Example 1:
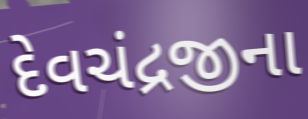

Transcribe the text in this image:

દેવચંદ્રજીના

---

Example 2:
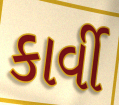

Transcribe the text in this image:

કાર્વી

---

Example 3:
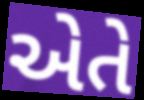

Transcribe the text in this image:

એતે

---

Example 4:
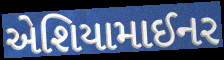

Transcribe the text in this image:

એશિયામાઈનર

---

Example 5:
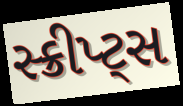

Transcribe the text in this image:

સ્ક્રીપ્ટ્સ